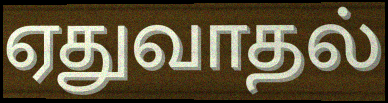
ஏதுவாதல்